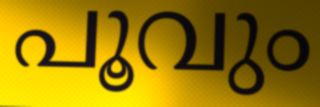
പൂവും